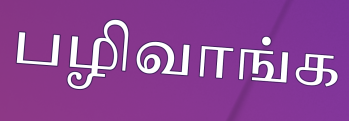
பழிவாங்க